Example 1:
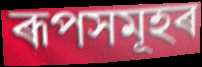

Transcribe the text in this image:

ৰূপসমূহৰ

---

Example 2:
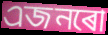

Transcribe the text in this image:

এজনৰো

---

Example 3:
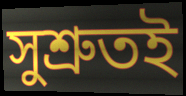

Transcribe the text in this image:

সুশ্ৰুতই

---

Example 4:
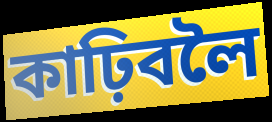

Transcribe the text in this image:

কাঢ়িবলৈ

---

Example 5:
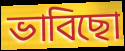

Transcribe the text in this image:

ভাবিছো